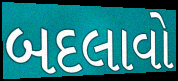
બદલાવો